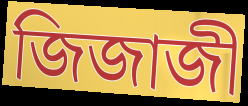
জিজাজী